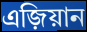
এজ়িয়ান